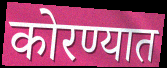
कोरण्यात